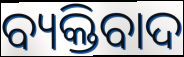
ବ୍ୟକ୍ତିବାଦ